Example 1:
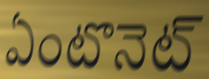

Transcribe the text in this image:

ఏంటొనెట్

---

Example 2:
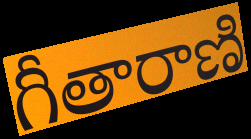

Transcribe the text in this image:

గీతారాణి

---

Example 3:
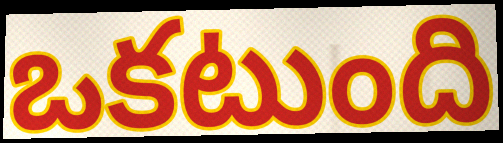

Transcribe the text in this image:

ఒకటుంది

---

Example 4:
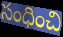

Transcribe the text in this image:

సంధించి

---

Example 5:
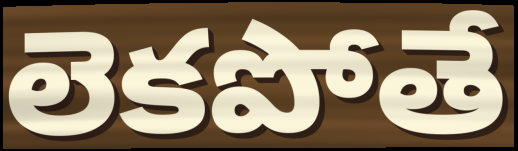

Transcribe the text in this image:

లెకపోతే